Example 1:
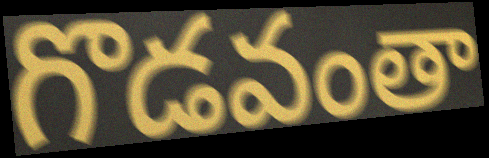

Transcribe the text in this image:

గొడవంతా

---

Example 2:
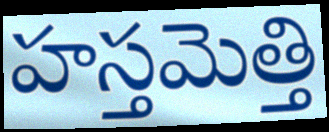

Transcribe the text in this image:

హస్తమెత్తి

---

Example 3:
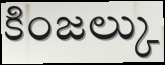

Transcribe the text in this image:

కింజల్కు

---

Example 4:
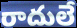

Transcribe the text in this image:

రాదులే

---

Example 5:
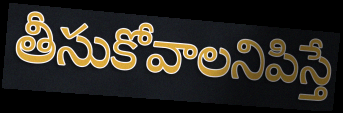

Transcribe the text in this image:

తీసుకోవాలనిపిస్తే